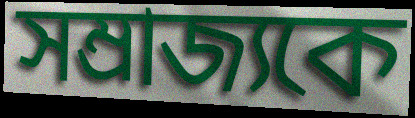
সম্রাজ্যকে